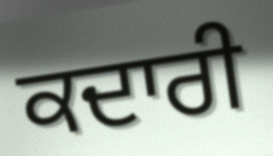
ਕਦਾਰੀ